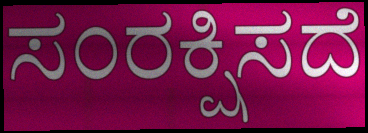
ಸಂರಕ್ಷಿಸದೆ